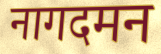
नागदमन